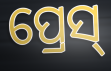
ପ୍ରେସ୍